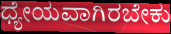
ಧ್ಯೇಯವಾಗಿರಬೇಕು